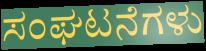
ಸಂಘಟನೆಗಳು